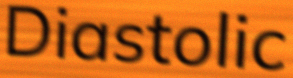
Diastolic